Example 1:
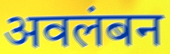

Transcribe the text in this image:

अवलंबन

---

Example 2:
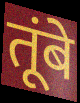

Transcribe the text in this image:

तूंबे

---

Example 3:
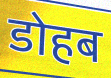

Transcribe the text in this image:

डोहब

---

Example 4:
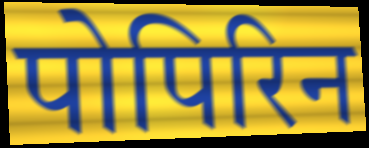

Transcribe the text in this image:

पोपिरिन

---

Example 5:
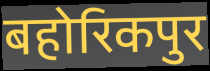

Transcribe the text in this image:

बहोरिकपुर